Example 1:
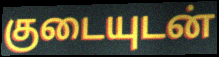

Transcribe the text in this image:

குடையுடன்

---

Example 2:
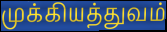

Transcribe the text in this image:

முக்கியத்துவம்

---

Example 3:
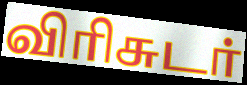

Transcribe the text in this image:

விரிசுடர்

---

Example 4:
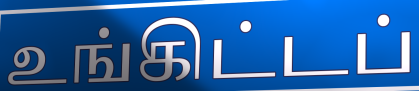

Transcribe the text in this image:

உங்கிட்டப்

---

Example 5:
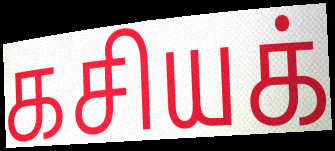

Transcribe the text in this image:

கசியக்